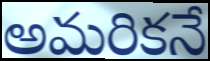
అమరికనే